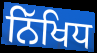
ਨਿੱਖਿਧ